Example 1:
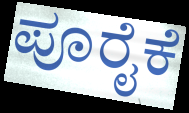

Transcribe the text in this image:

ಪೂರೈಕೆ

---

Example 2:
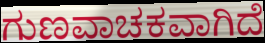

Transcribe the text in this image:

ಗುಣವಾಚಕವಾಗಿದೆ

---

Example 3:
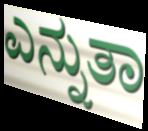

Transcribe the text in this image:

ಎನ್ನುತಾ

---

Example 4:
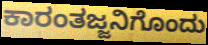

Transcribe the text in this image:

ಕಾರಂತಜ್ಜನಿಗೊಂದು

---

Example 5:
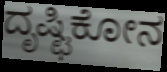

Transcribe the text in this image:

ದೃಷ್ಟಿಕೋನ